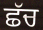
ਛੱਚ